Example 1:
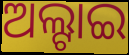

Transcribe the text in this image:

ଅଲ୍ଟାଇ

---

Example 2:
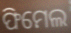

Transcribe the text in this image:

ଫିମେଲ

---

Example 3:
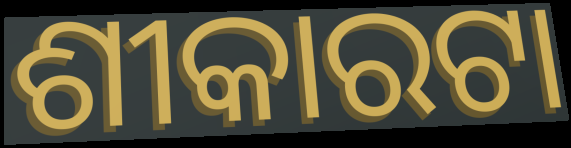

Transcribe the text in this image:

ଶୀକାରଟା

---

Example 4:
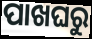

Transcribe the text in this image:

ପାଖଘରୁ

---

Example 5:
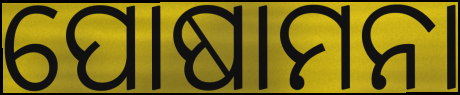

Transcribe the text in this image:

ପୋଷାମନା